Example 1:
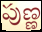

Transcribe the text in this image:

పుణ్ణ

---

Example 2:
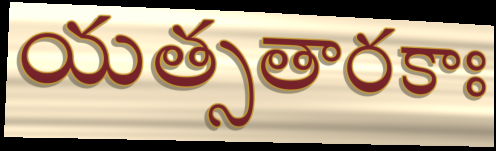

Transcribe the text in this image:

యత్సతారకాః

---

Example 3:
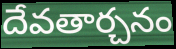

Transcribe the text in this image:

దేవతార్చనం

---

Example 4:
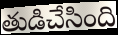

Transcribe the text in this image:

తుడిచేసింది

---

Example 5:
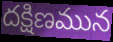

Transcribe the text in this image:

దక్షిణమున